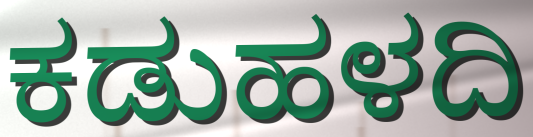
ಕಡುಹಳದಿ